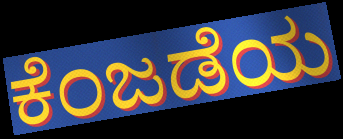
ಕೆಂಜಡೆಯ